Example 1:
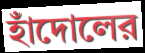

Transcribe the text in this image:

হাঁদোলের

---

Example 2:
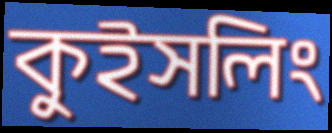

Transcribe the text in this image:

কুইসলিং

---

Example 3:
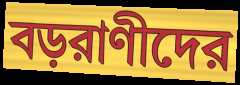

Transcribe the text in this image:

বড়রাণীদের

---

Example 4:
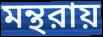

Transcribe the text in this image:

মন্থরায়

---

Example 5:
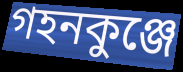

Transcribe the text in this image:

গহনকুঞ্জে